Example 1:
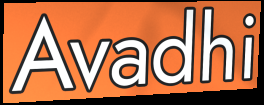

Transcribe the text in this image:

Avadhi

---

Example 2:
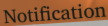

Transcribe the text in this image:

Notification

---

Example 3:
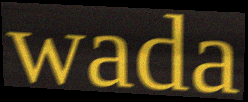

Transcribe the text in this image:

wada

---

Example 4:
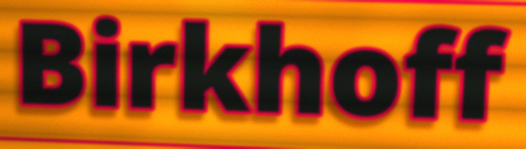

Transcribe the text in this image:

Birkhoff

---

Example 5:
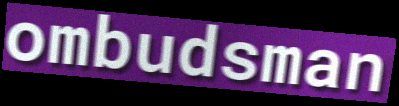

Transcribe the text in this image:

ombudsman